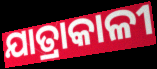
ଯାତ୍ରାକାଳୀ